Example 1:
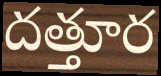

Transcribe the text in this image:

దత్తూర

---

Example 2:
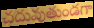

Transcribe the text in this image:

చదువుతుండగా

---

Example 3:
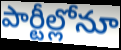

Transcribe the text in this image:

పార్టీల్లోనూ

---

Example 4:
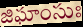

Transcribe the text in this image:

జిఘాంసుః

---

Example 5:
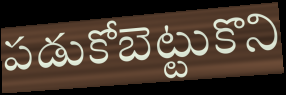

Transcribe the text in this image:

పడుకోబెట్టుకొని